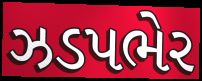
ઝડપભેર